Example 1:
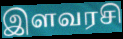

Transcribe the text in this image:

இளவரசி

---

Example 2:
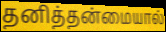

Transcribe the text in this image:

தனித்தன்மையால்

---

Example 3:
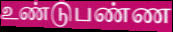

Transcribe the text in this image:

உண்டுபண்ண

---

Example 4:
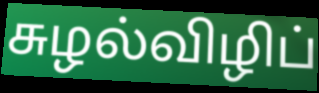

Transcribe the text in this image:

சுழல்விழிப்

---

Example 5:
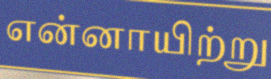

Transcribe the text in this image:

என்னாயிற்று